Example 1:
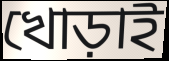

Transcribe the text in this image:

খোড়াই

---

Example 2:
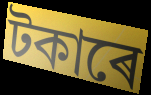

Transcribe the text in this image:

টকাৰে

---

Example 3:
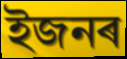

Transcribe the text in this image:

ইজনৰ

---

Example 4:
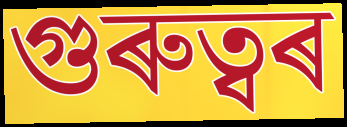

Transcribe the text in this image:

গুৰুত্বৰ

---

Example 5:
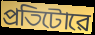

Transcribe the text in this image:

প্ৰতিটোৱে